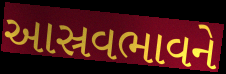
આસ્રવભાવને